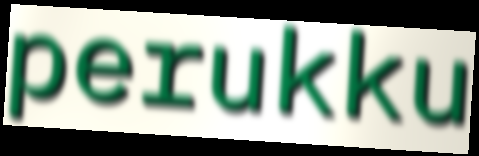
perukku